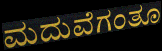
ಮದುವೆಗಂತೂ